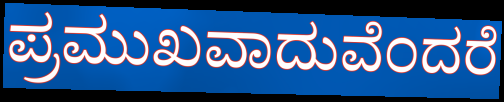
ಪ್ರಮುಖವಾದುವೆಂದರೆ